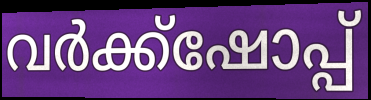
വർക്ക്ഷോപ്പ്